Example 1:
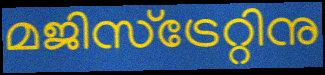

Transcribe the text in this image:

മജിസ്ട്രേറ്റിനു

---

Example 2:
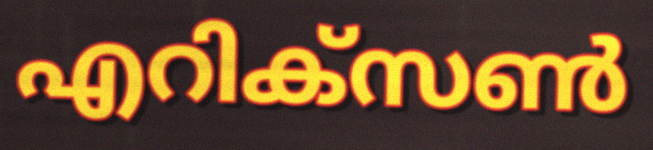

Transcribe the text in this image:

എറിക്സൺ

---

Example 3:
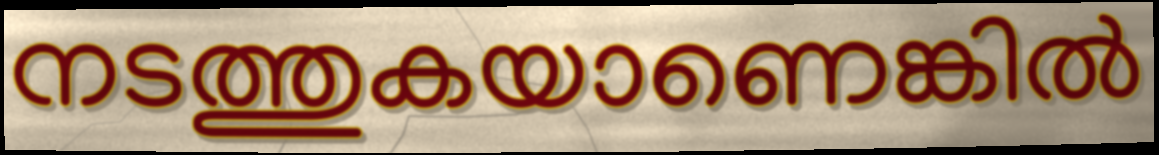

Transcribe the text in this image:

നടത്തുകയാണെങ്കിൽ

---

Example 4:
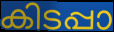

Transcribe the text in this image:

കിടപ്പാ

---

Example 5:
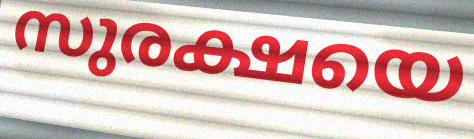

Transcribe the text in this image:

സുരക്ഷയെ